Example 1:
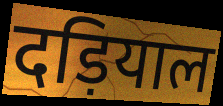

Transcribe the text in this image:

दड़ियाल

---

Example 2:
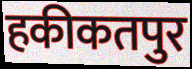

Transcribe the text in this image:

हकीकतपुर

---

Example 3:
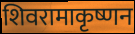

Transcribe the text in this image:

शिवरामाकृष्णन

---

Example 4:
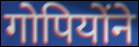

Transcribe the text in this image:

गोपियोंने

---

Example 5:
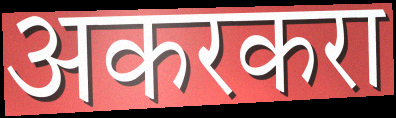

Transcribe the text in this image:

अकरकरा